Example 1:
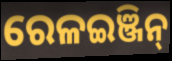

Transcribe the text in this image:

ରେଳଇଞ୍ଜିନ୍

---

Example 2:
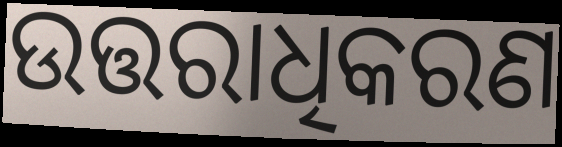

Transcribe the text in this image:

ଉତ୍ତରାଧିକରଣ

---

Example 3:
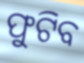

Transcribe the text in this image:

ଫୁଟିବ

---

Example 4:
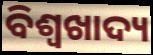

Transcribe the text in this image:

ବିଶ୍ୱଖାଦ୍ୟ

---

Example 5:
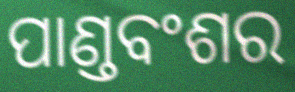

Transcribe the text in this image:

ପାଣ୍ଡବଂଶର